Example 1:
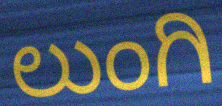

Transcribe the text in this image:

ಲುಂಗಿ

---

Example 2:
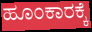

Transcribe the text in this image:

ಹೂಂಕಾರಕ್ಕೆ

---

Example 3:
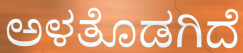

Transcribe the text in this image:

ಅಳತೊಡಗಿದೆ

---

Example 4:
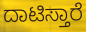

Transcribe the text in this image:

ದಾಟಿಸ್ತಾರೆ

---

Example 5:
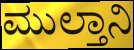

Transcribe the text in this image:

ಮುಲ್ತಾನಿ